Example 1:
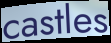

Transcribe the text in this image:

castles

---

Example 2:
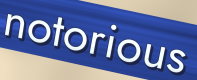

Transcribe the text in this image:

notorious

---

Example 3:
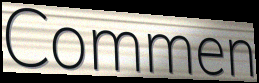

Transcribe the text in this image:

Commen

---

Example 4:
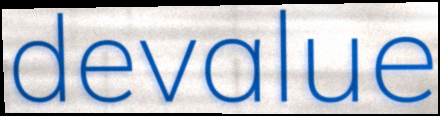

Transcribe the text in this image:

devalue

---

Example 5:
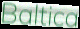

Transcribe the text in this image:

Baltica